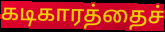
கடிகாரத்தைச்